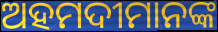
ଅହମଦୀମାନଙ୍କ